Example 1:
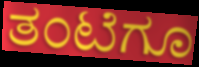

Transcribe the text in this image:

ತಂಟೆಗೂ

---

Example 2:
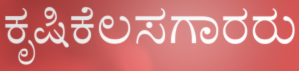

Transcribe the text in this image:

ಕೃಷಿಕೆಲಸಗಾರರು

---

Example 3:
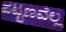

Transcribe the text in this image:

ಪಟ್ಟಣವೆಲ್ಲ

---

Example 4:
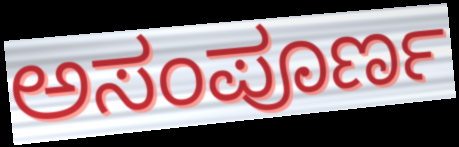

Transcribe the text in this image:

ಅಸಂಪೂರ್ಣ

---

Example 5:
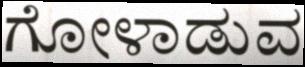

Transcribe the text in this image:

ಗೋಳಾಡುವ